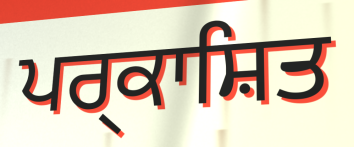
ਪਰ੍ਕਾਸ਼ਿਤ